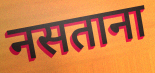
नसताना